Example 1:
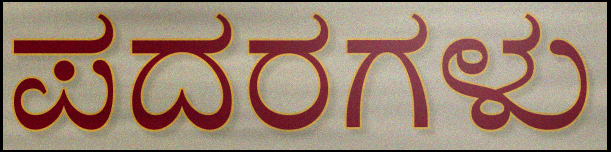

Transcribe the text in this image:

ಪದರಗಳು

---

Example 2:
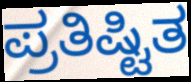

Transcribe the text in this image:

ಪ್ರತಿಷ್ಟಿತ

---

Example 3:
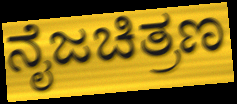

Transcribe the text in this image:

ನೈಜಚಿತ್ರಣ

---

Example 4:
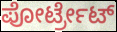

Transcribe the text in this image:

ಪೋರ್ಟ್ರೇಟ್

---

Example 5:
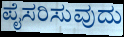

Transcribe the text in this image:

ಪೈಸರಿಸುವುದು